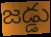
జడ్డు